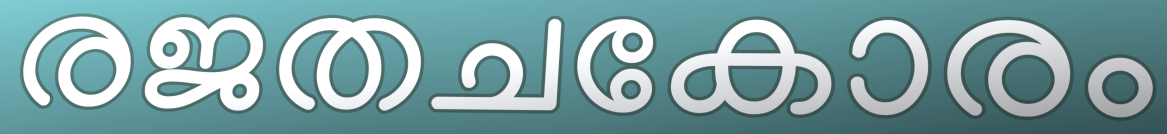
രജതചകോരം